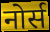
नोर्स